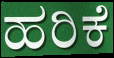
ಹರಿಕೆ